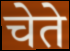
चेते